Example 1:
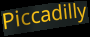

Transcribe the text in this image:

Piccadilly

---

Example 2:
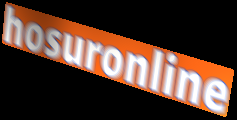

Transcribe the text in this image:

hosuronline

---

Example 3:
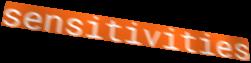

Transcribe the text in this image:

sensitivities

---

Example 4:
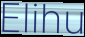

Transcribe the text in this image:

Elihu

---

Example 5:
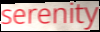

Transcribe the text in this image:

serenity